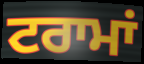
ਟਰਾਮਾਂ